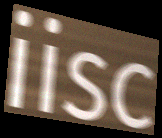
iisc